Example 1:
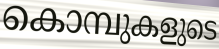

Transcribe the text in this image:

കൊമ്പുകളുടെ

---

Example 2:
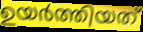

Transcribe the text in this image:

ഉയർത്തിയത്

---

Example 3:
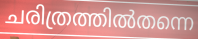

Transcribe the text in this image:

ചരിത്രത്തിൽതന്നെ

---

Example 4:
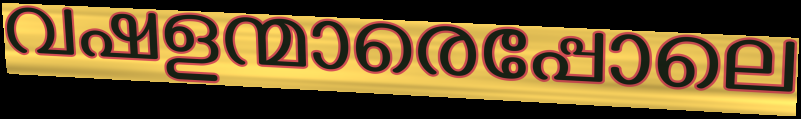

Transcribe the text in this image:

വഷളന്മാരെപ്പോലെ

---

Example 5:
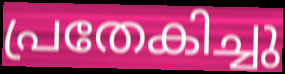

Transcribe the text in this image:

പ്രതേകിച്ചു